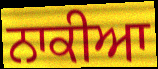
ਨਾਕੀਆ